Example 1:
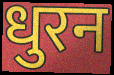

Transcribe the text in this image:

धुरन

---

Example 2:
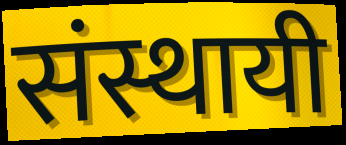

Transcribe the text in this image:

संस्थायी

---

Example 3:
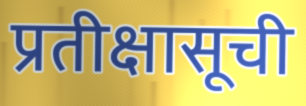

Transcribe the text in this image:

प्रतीक्षासूची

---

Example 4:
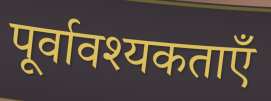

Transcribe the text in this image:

पूर्वावश्यकताएँ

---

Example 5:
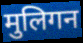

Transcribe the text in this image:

मुलिगन